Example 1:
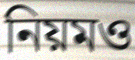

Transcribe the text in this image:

নিয়মও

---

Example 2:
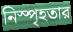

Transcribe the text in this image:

নিস্পৃহতার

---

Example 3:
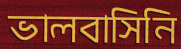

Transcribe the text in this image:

ভালবাসিনি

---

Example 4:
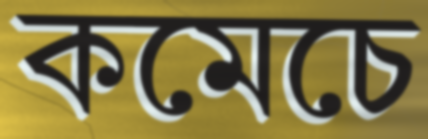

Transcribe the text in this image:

কমেচে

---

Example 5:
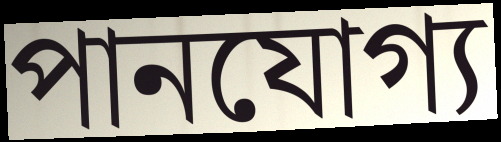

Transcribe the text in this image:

পানযোগ্য